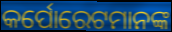
କର୍ପୋରେଟମାନଙ୍କ